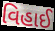
વિહાઈ